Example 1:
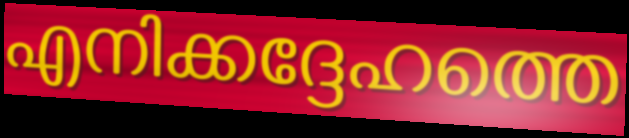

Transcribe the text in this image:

എനിക്കദ്ദേഹത്തെ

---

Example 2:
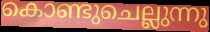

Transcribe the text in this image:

കൊണ്ടുചെല്ലുന്നു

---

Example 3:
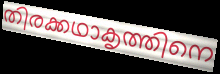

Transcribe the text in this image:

തിരക്കഥാകൃത്തിനെ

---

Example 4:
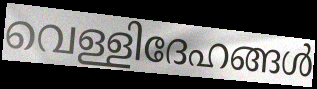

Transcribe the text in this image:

വെള്ളിദേഹങ്ങൾ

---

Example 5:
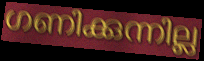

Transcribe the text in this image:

ഗണിക്കുന്നില്ല